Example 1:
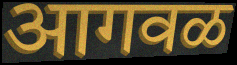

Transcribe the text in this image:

आगवळ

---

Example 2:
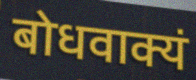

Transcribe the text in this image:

बोधवाक्यं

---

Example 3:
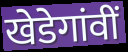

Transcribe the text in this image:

खेडेगांवीं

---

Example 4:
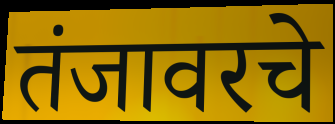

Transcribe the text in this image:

तंजावरचे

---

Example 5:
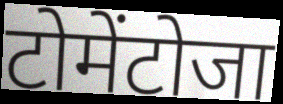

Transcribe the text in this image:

टोमेंटोजा